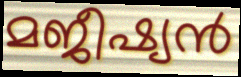
മജീഷ്യൻ